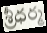
శ్రీధర్మ